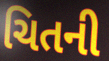
ચિતની